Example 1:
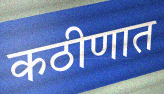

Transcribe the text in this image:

कठीणात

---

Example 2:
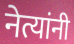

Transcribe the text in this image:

नेत्यांनी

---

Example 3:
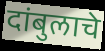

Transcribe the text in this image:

दांबुलाचे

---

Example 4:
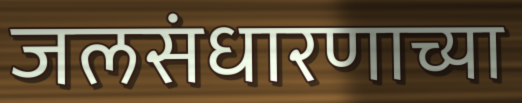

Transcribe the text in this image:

जलसंधारणाच्या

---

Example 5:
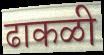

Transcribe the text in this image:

ढाकळी